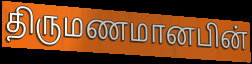
திருமணமானபின்